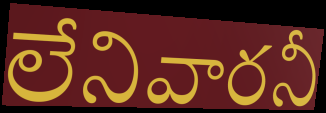
లేనివారనీ